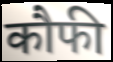
कौफी